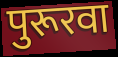
पुरूरवा